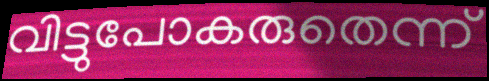
വിട്ടുപോകരുതെന്ന്